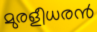
മുരളീധരൻ